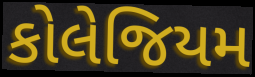
કોલેજિયમ